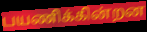
பயணிக்கின்றன